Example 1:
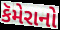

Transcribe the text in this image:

કૅમેરાનો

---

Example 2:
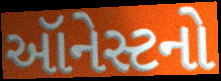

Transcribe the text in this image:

ઑનેસ્ટનો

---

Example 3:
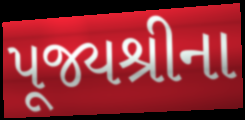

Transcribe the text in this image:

પૂજ્યશ્રીના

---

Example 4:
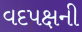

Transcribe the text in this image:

વદપક્ષની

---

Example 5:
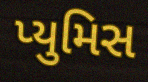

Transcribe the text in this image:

પ્યુમિસ